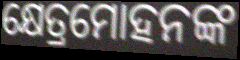
କ୍ଷେତ୍ରମୋହନଙ୍କ